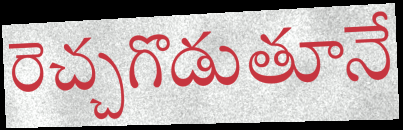
రెచ్చగొడుతూనే